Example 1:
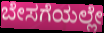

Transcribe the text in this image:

ಬೇಸಗೆಯಲ್ಲೇ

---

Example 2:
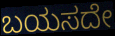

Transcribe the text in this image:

ಬಯಸದೇ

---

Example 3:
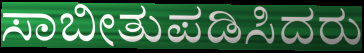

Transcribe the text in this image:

ಸಾಬೀತುಪಡಿಸಿದರು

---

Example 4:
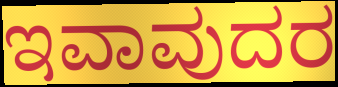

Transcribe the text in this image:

ಇವಾವುದರ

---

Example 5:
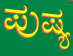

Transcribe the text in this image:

ಪುಷ್ಯ